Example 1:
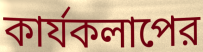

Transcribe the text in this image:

কার্যকলাপের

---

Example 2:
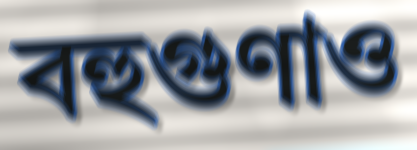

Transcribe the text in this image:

বহুগুণাও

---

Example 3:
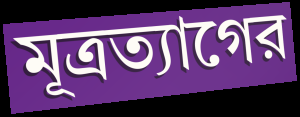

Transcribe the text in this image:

মূত্রত্যাগের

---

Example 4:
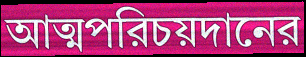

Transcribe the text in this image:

আত্মপরিচয়দানের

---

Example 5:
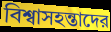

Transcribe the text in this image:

বিশ্বাসহন্তাদের